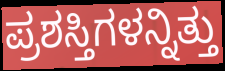
ಪ್ರಶಸ್ತಿಗಳನ್ನಿತ್ತು